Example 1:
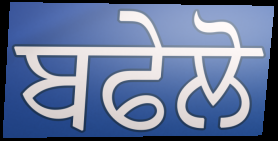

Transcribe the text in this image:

ਬਫੇਲੋ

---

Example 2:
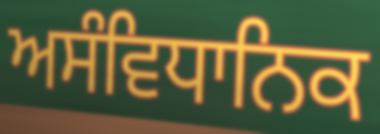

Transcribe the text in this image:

ਅਸੰਵਿਧਾਨਿਕ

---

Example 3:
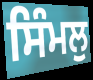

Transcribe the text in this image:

ਸਿੰਮਲੁ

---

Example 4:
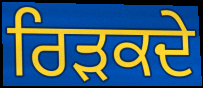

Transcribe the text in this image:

ਰਿੜਕਦੇ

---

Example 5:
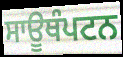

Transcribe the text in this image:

ਸਾਊਥੰਪਟਨ